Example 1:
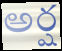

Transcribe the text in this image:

అర్ష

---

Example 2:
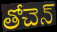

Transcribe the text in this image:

తోచెన్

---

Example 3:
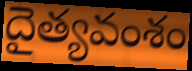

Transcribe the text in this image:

దైత్యవంశం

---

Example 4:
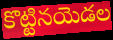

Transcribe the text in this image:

కొట్టినయెడల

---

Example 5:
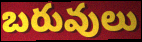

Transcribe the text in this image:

బరువులు